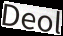
Deol